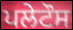
ਪਲੇਟੌਸ